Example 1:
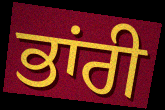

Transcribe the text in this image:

ਭਾਂਰੀ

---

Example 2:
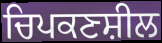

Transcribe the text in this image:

ਚਿਪਕਣਸ਼ੀਲ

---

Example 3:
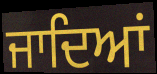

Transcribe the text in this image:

ਜਾਦਿਆਂ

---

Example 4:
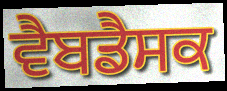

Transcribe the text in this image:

ਵੈਬਡੈਸਕ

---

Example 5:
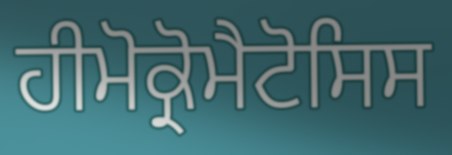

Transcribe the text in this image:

ਹੀਮੋਕ੍ਰੋਮੈਟੋਸਿਸ